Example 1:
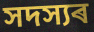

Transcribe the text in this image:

সদস্যৰ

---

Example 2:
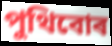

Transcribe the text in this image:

পুথিবোৰ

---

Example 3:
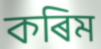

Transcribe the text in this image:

কৰিম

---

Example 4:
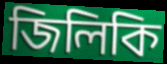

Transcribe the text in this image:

জিলিকি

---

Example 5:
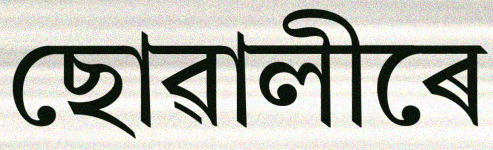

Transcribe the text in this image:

ছোৱালীৰে